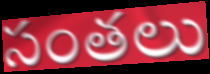
సంతలు